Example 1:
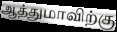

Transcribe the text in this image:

ஆத்துமாவிற்கு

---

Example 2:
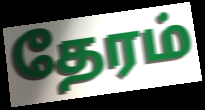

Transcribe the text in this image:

தேரம்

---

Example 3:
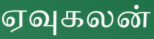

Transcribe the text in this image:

ஏவுகலன்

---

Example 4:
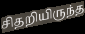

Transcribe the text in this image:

சிதறியிருந்த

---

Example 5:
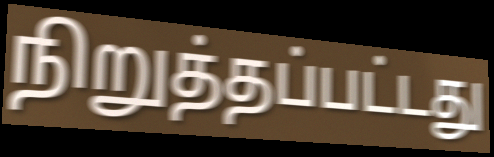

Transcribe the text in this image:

நிறுத்தப்பட்டது